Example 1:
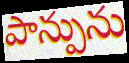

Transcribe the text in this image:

పాన్పును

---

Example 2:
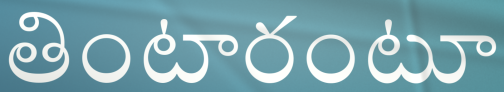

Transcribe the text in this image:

తింటారంటూ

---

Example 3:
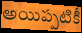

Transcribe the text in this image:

అయిప్పటికీ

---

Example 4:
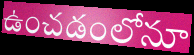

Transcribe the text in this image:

ఉంచడంలోనూ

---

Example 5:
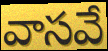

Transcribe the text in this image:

వాసవే